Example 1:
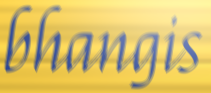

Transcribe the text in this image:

bhangis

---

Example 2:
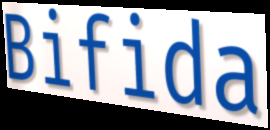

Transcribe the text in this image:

Bifida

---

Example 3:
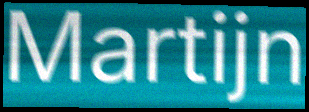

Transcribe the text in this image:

Martijn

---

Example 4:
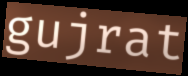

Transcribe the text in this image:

gujrat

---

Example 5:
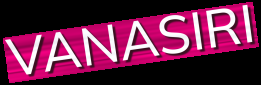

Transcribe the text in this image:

VANASIRI